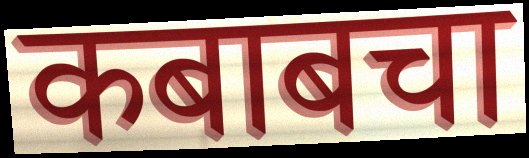
कबाबचा